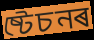
ষ্টেচনৰ